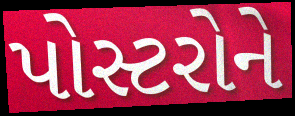
પોસ્ટરોને